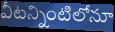
వీటన్నింటిలోనూ